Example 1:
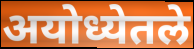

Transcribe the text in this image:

अयोध्येतले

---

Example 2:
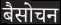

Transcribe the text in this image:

बैसोचन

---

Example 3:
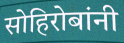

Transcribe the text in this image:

सोहिरोबांनी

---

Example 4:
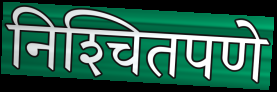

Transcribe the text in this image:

निश्‍चितपणे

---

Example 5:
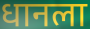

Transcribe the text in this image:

धानला